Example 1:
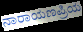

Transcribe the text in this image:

ನಾರಾಯಣಪ್ರಿಯ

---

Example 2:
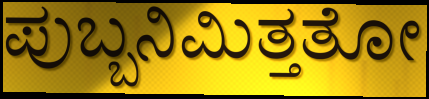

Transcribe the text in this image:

ಪುಬ್ಬನಿಮಿತ್ತತೋ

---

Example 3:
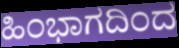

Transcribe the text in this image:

ಹಿಂಭಾಗದಿಂದ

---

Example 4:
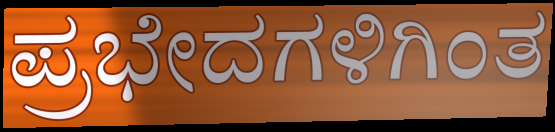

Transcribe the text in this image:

ಪ್ರಭೇದಗಳಿಗಿಂತ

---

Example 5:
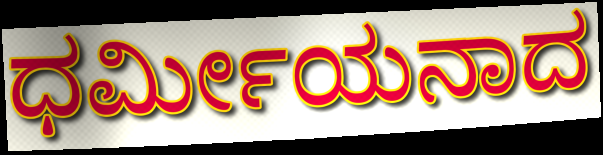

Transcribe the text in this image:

ಧರ್ಮೀಯನಾದ